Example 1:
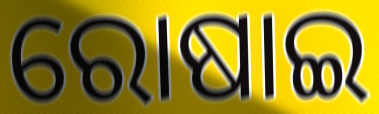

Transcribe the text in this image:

ରୋଷାଇ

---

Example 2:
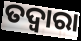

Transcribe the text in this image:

ତଦ୍ୱାରା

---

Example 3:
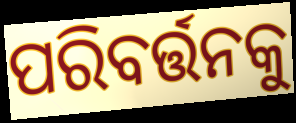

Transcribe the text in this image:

ପରିବର୍ତ୍ତନକୁ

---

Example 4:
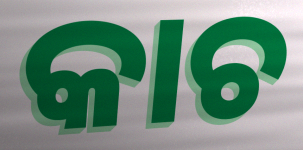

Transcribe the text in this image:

କାଚ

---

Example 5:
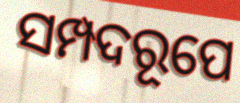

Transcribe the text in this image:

ସମ୍ପଦରୂପେ